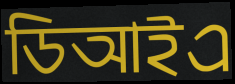
ডিআইএ